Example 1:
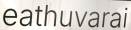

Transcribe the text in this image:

eathuvarai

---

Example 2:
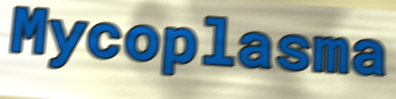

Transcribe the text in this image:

Mycoplasma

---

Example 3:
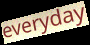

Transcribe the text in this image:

everyday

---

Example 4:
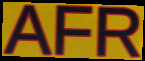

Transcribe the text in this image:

AFR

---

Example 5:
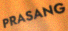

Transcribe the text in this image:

PRASANG